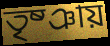
তৃষ্ঞায়